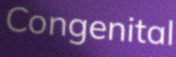
Congenital